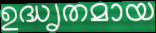
ഉദ്ധൃതമായ